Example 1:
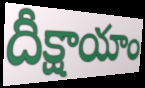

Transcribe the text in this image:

దీక్షాయాం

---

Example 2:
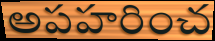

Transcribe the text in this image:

అపహరించ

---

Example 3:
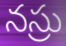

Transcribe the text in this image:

నస్రు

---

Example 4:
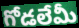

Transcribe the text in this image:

గోడలేమీ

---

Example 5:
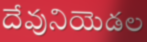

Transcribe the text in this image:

దేవునియెడల